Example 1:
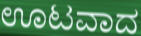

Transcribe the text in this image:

ಊಟವಾದ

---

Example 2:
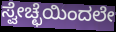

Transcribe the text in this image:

ಸ್ವೇಚ್ಛೆಯಿಂದಲೇ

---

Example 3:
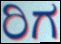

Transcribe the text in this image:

ರಿಗ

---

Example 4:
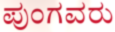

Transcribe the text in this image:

ಪುಂಗವರು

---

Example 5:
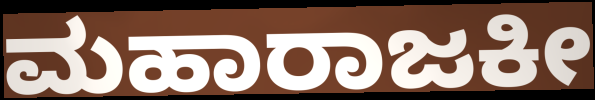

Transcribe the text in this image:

ಮಹಾರಾಜಕೀ